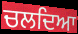
ਚਲਦਿਆ